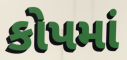
કોપમાં